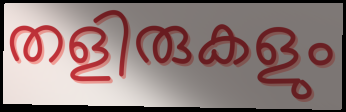
തളിരുകളും